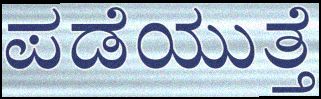
ಪಡೆಯುತ್ತೆ